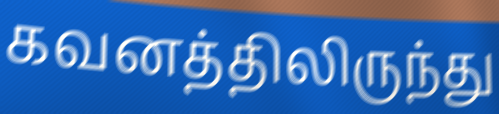
கவனத்திலிருந்து